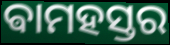
ଵାମହସ୍ତର